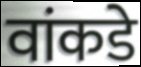
वांकडे